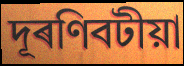
দূৰণিবটীয়া